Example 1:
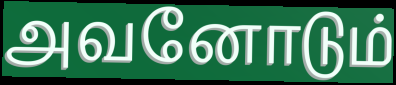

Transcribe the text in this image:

அவனோடும்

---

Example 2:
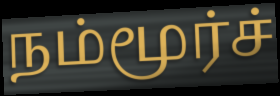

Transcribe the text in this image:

நம்மூர்ச்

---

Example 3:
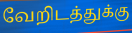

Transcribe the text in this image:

வேறிடத்துக்கு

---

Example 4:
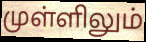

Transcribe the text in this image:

முள்ளிலும்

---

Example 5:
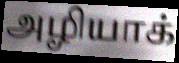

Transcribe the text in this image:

அழியாக்